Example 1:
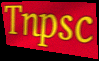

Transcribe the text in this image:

Tnpsc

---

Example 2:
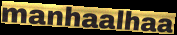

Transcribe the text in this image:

manhaalhaa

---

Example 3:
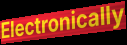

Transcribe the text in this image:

Electronically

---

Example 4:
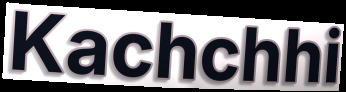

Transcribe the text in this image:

Kachchhi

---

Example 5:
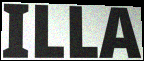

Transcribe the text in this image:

ILLA